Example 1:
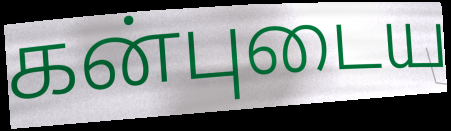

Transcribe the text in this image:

கன்புடைய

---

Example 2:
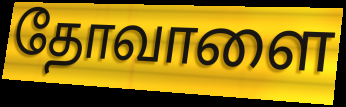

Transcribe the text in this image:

தோவாளை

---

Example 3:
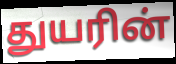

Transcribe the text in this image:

துயரின்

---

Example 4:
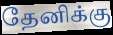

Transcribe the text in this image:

தேனிக்கு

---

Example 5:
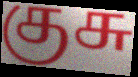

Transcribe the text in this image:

குசு